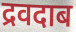
द्रवदाब